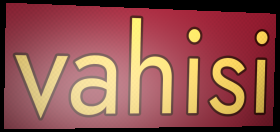
vahisi